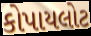
કોપાયલોટ